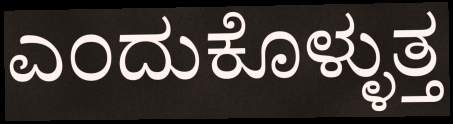
ಎಂದುಕೊಳ್ಳುತ್ತ